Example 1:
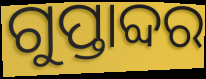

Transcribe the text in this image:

ଗୁପ୍ତାବ୍ଦର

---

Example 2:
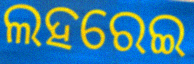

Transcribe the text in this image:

ଲହରେଇ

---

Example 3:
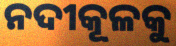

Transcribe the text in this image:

ନଦୀକୂଳକୁ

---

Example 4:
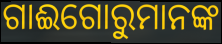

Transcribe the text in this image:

ଗାଈଗୋରୁମାନଙ୍କ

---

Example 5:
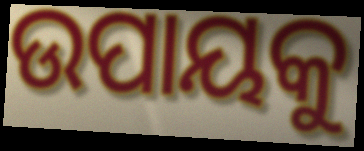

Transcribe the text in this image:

ଉପାୟକୁ